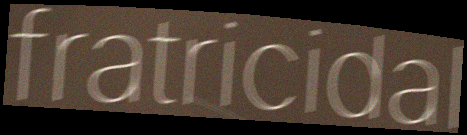
fratricidal